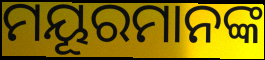
ମୟୂରମାନଙ୍କ